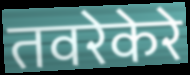
तवरेकेरे